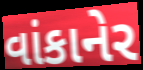
વાંકાનેર